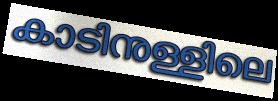
കാടിനുള്ളിലെ